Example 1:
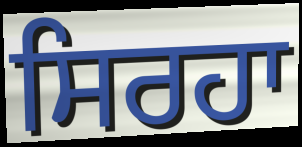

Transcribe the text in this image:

ਸਿਰਹਾ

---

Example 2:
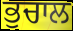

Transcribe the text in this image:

ਭੁਚਾਲ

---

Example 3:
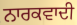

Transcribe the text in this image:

ਨਾਰਕਵਾਦੀ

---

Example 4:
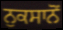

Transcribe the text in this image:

ਨੁਕਸਾਨੋਂ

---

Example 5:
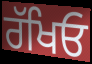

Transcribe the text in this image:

ਰੱਖਿਓ